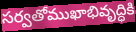
సర్వతోముఖాభివృద్ధికి